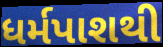
ધર્મપાશથી